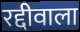
रद्दीवाला